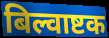
बिल्वाष्टक